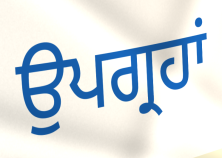
ਉਪਗ੍ਰਹਾਂ